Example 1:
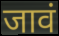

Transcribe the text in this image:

जावं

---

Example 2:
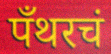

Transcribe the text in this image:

पँथरचं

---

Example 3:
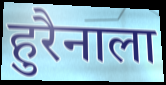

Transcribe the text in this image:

हुरैनाला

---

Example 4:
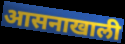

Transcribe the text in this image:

आसनाखाली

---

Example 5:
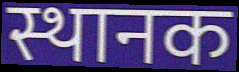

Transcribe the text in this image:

स्थानक